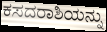
ಕಸದರಾಶಿಯನ್ನು